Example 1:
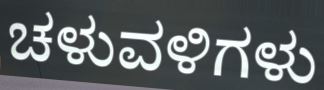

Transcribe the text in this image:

ಚಳುವಳಿಗಳು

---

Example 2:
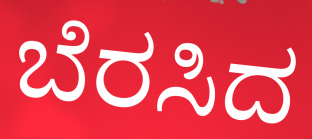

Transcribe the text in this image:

ಬೆರಸಿದ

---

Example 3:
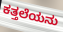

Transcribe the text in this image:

ಕತ್ತಲೆಯನು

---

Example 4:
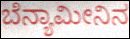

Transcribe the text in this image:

ಬೆನ್ಯಾಮೀನಿನ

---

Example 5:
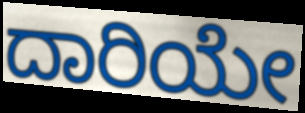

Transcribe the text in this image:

ದಾರಿಯೇ